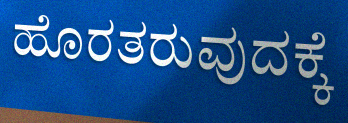
ಹೊರತರುವುದಕ್ಕೆ